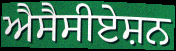
ਐਸੈਸੀਏਸ਼ਨ